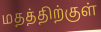
மதத்திற்குள்